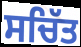
ਸਚਿੱਤ